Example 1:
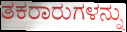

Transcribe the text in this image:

ತಕರಾರುಗಳನ್ನು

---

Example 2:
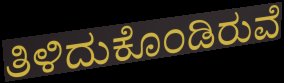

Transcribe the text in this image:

ತಿಳಿದುಕೊಂಡಿರುವೆ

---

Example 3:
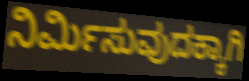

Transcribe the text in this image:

ನಿರ್ಮಿಸುವುದಕ್ಕಾಗಿ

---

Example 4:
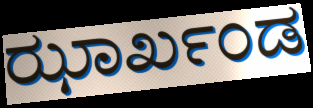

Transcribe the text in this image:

ಝಾರ್ಖಂಡ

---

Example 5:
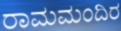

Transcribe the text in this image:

ರಾಮಮಂದಿರ